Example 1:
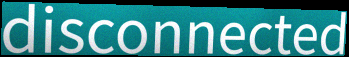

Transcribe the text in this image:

disconnected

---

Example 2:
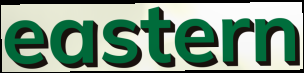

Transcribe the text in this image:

eastern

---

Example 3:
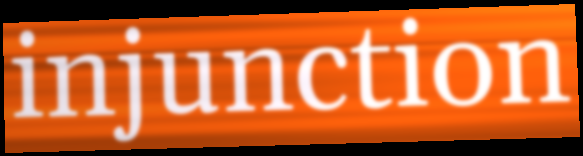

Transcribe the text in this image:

injunction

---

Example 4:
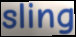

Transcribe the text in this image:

sling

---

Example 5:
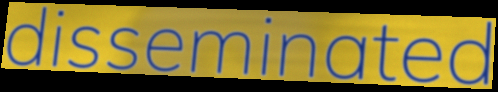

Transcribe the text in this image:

disseminated